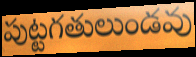
పుట్టగతులుండవు